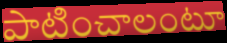
పాటించాలంటూ